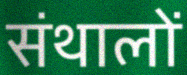
संथालों